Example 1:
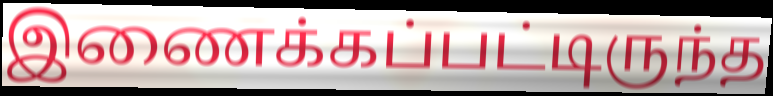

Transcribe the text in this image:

இணைக்கப்பட்டிருந்த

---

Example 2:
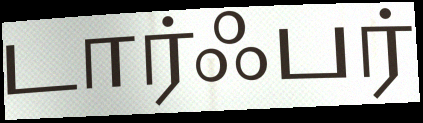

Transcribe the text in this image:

டார்ஃபர்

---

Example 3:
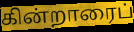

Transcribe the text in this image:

கின்றாரைப்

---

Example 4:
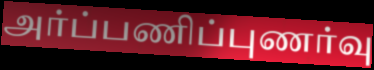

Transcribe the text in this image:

அர்ப்பணிப்புணர்வு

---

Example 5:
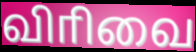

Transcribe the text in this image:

விரிவை